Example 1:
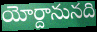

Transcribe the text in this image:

యోర్దానునది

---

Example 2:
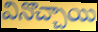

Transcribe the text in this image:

వినొచ్చాయి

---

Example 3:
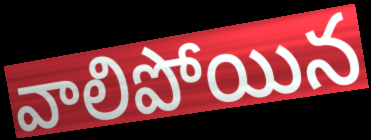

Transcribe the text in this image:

వాలిపోయిన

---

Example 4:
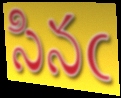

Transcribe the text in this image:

సినఁ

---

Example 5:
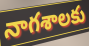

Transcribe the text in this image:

నాగశాలకు